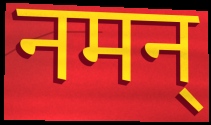
नमन्